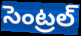
సెంట్రల్